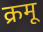
क्रमू